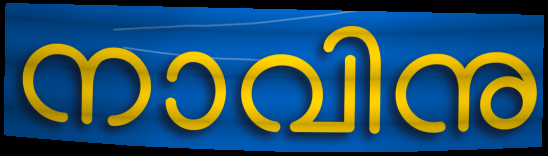
നാവിനു